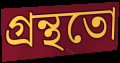
গ্ৰন্থতো